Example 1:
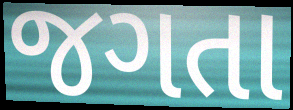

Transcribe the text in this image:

જગતા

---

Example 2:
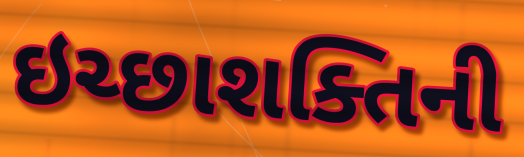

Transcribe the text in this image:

ઇચ્છાશક્તિની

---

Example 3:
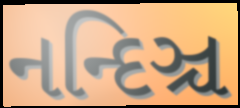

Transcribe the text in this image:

નન્દિઞ્ચ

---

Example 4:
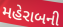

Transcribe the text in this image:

મહેરાબની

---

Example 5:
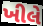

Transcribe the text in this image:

ખીલે